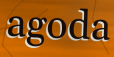
agoda